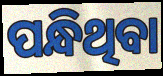
ପନ୍ଧିଥିବା